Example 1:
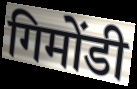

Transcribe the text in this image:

गिमोंडी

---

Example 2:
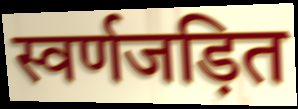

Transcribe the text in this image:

स्वर्णजड़ित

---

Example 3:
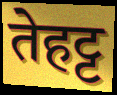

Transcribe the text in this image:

तेहट्ट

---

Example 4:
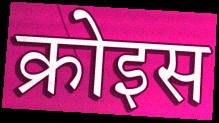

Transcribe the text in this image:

क्रोइस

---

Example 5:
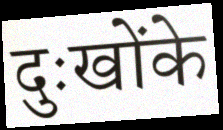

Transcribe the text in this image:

दुःखोंके